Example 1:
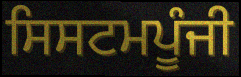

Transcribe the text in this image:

ਸਿਸਟਮਪੂੰਜੀ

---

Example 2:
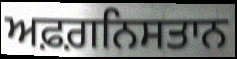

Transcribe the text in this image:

ਅਫ਼ਗ਼ਨਿਸਤਾਨ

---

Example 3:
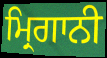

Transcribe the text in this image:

ਮ੍ਰਿਗਾਨੀ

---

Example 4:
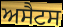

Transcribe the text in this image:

ਅਸੈਟਸ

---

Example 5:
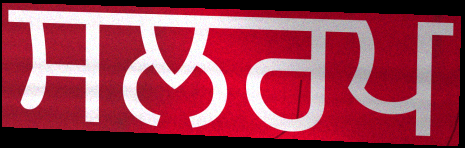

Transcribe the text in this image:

ਸਲਰਪ